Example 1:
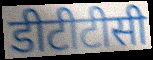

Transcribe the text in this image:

डीटीटीसी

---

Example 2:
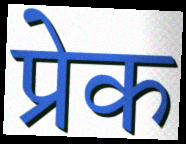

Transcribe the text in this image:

प्रेक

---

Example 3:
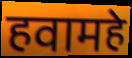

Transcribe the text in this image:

हवामहे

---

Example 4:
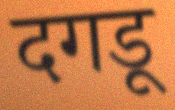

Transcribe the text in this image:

दगडू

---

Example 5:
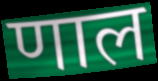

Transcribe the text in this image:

णाल